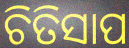
ଚିତିସାପ